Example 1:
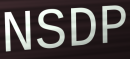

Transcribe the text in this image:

NSDP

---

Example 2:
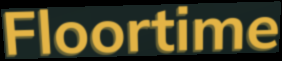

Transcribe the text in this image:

Floortime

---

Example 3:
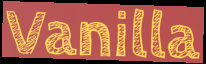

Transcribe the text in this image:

Vanilla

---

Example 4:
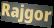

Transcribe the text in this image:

Rajgor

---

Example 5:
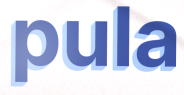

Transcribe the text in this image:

pula